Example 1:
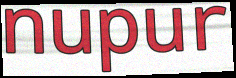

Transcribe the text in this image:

nupur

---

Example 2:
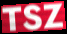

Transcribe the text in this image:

TSZ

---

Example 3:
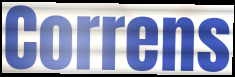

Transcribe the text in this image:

Correns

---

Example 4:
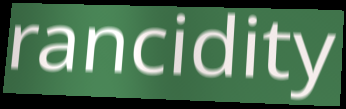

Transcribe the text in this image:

rancidity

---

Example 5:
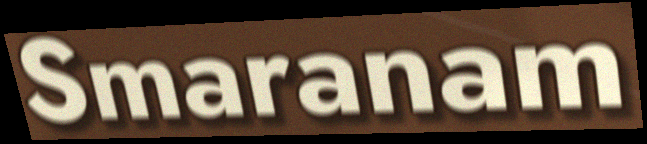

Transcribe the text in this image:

Smaranam